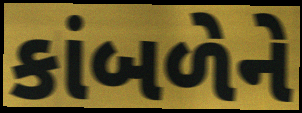
કાંબળેને